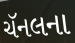
ચૅનલના